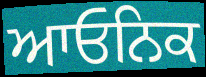
ਆਓਨਿਕ